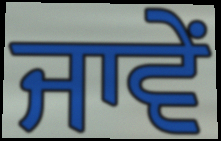
ਜਾਵੇਂ